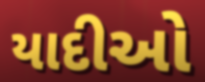
યાદીઓ